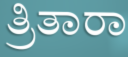
ತ್ರಿತಾರಾ